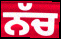
ਨੱਚ